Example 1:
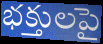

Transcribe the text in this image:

భక్తులపై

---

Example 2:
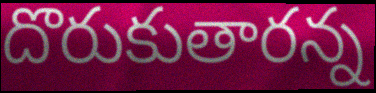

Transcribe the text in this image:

దొరుకుతారన్న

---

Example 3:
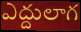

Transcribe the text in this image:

ఎద్దులాగ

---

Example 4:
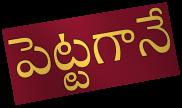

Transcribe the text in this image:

పెట్టగానే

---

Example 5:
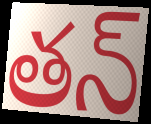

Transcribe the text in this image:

తన్